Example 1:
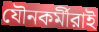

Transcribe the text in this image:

যৌনকর্মীরাই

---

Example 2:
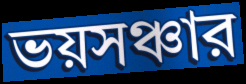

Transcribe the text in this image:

ভয়সঞ্চার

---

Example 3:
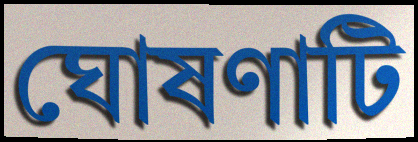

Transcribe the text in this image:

ঘোষণাটি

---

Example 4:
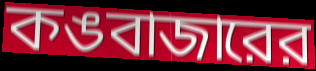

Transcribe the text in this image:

কঙবাজারের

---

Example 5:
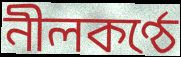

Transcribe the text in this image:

নীলকণ্ঠে